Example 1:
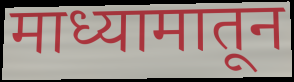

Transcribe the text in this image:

माध्यामातून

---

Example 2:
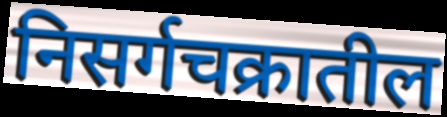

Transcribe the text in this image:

निसर्गचक्रातील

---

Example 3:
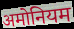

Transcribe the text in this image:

अमोनियम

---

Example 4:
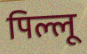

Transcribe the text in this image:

पिल्लू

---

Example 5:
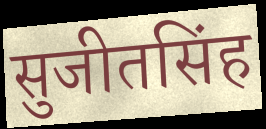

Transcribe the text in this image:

सुजीतसिंह